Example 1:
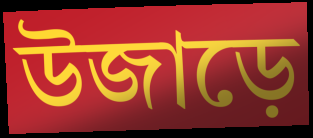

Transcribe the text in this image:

উজাড়ে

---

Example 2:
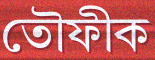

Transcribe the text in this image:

তৌফীক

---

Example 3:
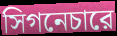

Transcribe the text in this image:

সিগনেচারে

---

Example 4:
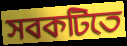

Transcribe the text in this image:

সবকটিতে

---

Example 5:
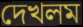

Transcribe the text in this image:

দেখলম